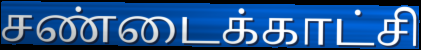
சண்டைக்காட்சி